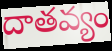
దాతవ్యం